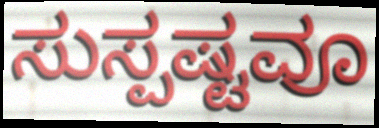
ಸುಸ್ಪಷ್ಟವೂ